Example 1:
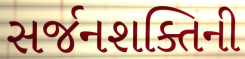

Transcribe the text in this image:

સર્જનશક્તિની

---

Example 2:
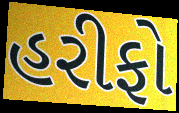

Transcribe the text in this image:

હરીફો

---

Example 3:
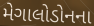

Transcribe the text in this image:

મેગાલોડોનના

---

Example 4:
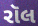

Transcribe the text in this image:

રૉલ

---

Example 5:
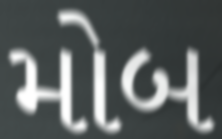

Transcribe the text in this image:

મોબ